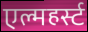
एल्महर्स्ट